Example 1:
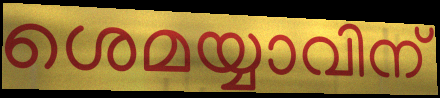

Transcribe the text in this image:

ശെമയ്യാവിന്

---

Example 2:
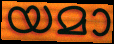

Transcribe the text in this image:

യമാ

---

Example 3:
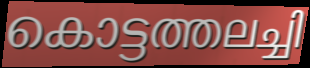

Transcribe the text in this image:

കൊട്ടത്തലച്ചി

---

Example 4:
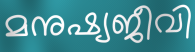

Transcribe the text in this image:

മനുഷ്യജീവി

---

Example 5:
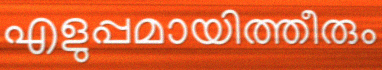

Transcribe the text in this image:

എളുപ്പമായിത്തീരും